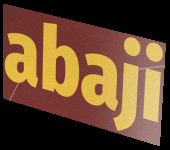
abaji